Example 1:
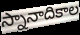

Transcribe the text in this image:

స్నానాదికాల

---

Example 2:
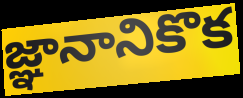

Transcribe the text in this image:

జ్ఞానానికొక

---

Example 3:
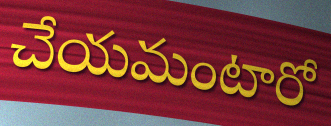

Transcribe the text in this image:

చేయమంటారో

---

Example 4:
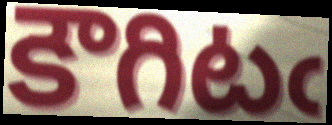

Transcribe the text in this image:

కౌగిటఁ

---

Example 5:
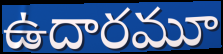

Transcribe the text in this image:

ఉదారమూ